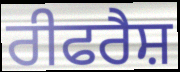
ਰੀਫਰੈਸ਼